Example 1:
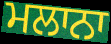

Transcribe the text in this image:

ਮਲਾਨਾ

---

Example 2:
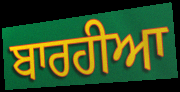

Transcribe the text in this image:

ਬਾਰਹੀਆ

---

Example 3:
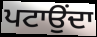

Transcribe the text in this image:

ਪਟਾਉਂਦਾ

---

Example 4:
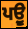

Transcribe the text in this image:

ਪਉੂ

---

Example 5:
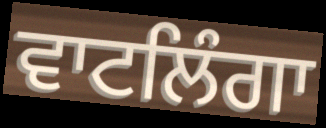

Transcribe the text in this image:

ਵਾਟਲਿੰਗਾ